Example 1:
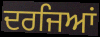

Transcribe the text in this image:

ਦਰਜਿਆਂ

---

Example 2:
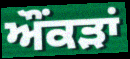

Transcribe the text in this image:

ਔਂਕੜਾਂ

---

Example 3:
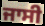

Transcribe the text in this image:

ਜਾਸੀ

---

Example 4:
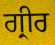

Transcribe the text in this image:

ਗ੍ਰੀਰ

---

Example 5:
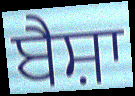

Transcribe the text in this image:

ਬੈਸ਼ਾ